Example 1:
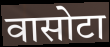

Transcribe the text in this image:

वासोटा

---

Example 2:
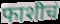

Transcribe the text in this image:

फाशीचं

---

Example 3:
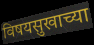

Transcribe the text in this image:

विषयसुखाच्या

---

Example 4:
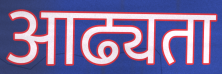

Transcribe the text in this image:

आढ्यता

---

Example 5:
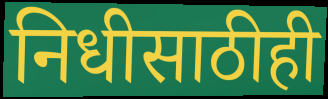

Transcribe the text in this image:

निधीसाठीही